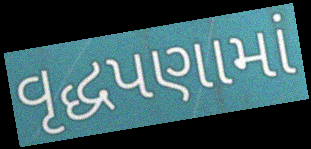
વૃદ્ધપણામાં